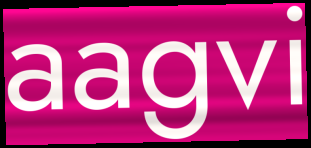
aagvi